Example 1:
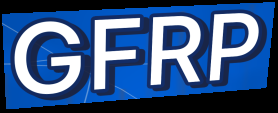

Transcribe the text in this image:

GFRP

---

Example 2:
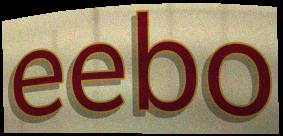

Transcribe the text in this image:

eebo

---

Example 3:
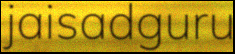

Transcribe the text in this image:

jaisadguru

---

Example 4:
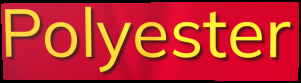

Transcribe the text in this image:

Polyester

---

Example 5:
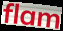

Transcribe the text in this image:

flam